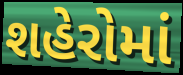
શહેરોમાં